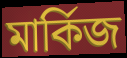
মার্কিজ